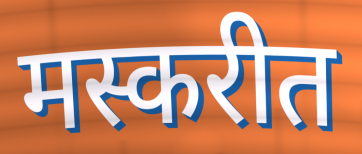
मस्करीत